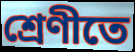
শ্ৰেণীতে